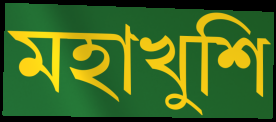
মহাখুশি